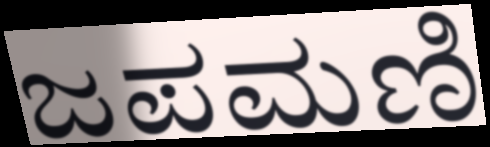
ಜಪಮಣಿ